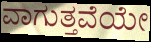
ವಾಗುತ್ತವೆಯೇ